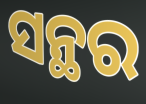
ସନ୍ଥର